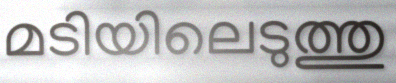
മടിയിലെടുത്തു